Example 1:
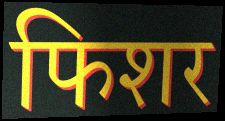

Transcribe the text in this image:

फिशर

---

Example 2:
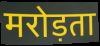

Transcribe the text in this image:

मरोड़ता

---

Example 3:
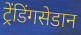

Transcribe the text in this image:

ट्रेंडिंगसेडान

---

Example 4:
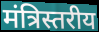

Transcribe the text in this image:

मंत्रिस्तरीय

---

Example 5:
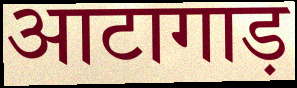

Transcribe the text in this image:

आटागाड़